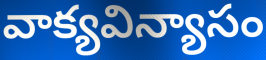
వాక్యవిన్యాసం